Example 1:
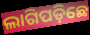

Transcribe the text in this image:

ଲାଗିପଡ଼ିଛେ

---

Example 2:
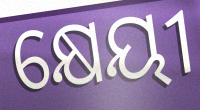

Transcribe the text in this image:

କ୍ଷେୟୀ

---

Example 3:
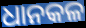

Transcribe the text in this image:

ଧାନକଳ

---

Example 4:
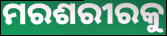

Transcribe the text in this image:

ମରଶରୀରକୁ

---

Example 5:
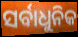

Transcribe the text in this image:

ସର୍ବାଧୁନିକ